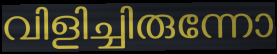
വിളിച്ചിരുന്നോ